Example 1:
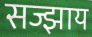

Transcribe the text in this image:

सज्झाय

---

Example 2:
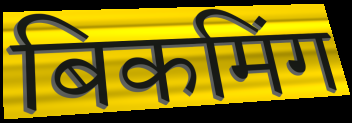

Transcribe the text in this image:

बिकमिंग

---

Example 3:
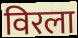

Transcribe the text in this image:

विरला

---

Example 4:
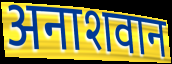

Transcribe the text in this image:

अनाशवान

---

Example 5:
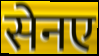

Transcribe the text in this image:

सेनए